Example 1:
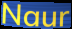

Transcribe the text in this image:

Naur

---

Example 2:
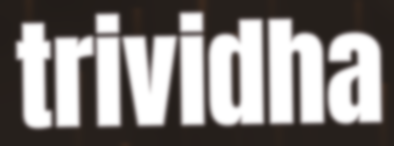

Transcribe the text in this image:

trividha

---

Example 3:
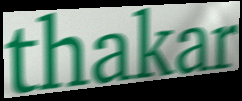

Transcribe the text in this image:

thakar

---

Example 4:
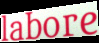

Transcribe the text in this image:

labore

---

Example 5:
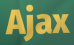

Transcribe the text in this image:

Ajax